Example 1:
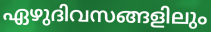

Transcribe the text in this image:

ഏഴുദിവസങ്ങളിലും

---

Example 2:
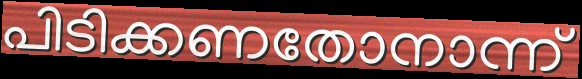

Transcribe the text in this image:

പിടിക്കണതോനാന്ന്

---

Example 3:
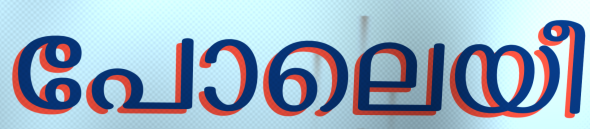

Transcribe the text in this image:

പോലെയീ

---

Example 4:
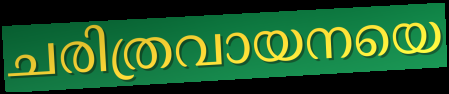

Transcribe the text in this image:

ചരിത്രവായനയെ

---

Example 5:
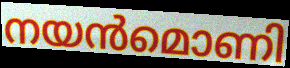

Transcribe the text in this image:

നയൻമൊണി